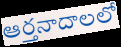
ఆర్తనాదాలలో